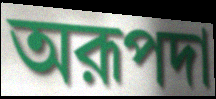
অরূপদা